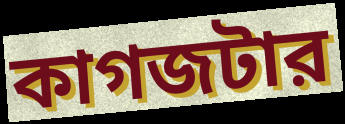
কাগজটার